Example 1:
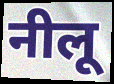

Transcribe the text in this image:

नीलू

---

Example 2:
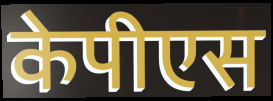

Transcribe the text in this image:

केपीएस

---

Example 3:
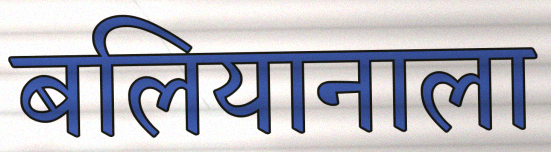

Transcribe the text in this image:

बलियानाला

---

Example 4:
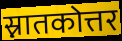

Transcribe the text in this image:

स्नातकोत्तर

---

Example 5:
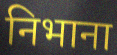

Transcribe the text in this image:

निभाना